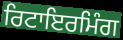
ਰਿਟਾਇਰਮਿੰਗ